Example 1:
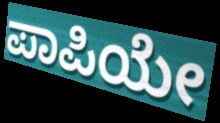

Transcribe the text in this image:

ಪಾಪಿಯೇ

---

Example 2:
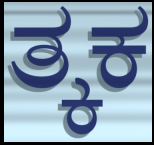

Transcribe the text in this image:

ತ್ಕಕ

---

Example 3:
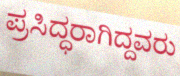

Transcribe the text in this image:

ಪ್ರಸಿದ್ಧರಾಗಿದ್ದವರು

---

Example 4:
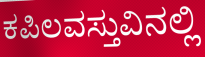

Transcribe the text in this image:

ಕಪಿಲವಸ್ತುವಿನಲ್ಲಿ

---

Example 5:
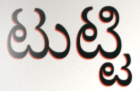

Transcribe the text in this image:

ಟುಟ್ಟಿ